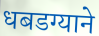
धबडग्याने